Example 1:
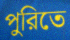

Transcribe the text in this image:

পুরিতে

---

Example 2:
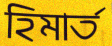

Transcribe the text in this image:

হিমার্ত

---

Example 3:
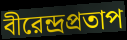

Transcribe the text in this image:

বীরেন্দ্রপ্রতাপ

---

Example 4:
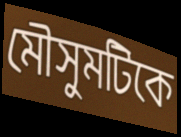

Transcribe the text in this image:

মৌসুমটিকে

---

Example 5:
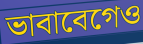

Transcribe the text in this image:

ভাবাবেগেও